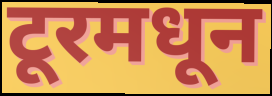
टूरमधून